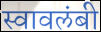
स्वावलंबी